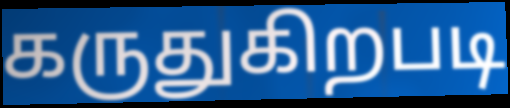
கருதுகிறபடி